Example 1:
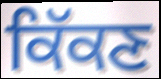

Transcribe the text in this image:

ਕਿੱਕਣ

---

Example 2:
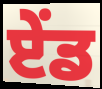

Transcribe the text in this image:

ਏੰਡ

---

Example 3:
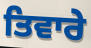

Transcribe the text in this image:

ਤਿਵਾਰੇ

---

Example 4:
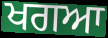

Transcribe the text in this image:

ਖਗਆ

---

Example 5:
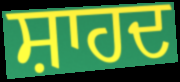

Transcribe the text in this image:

ਸ਼ਾਹਦ